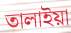
তালাইয়া